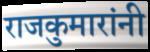
राजकुमारांनी